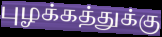
புழக்கத்துக்கு